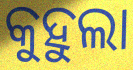
କୁହୁଲା